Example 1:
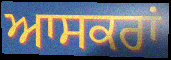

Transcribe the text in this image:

ਆਸਕਰਾਂ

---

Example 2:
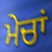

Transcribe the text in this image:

ਮੇਚਾਂ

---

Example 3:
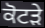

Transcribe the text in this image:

ਕੋਟੜੇ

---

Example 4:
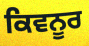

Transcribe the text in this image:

ਕਿਵਨੂਰ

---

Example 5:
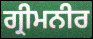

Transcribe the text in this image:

ਗ੍ਰੀਮਨੀਰ